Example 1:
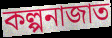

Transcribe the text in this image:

কল্পনাজাত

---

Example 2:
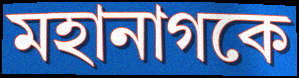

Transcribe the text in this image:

মহানাগকে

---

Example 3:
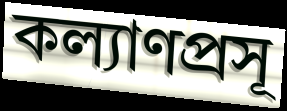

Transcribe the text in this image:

কল্যাণপ্রসূ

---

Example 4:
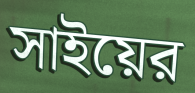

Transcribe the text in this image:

সাইয়ের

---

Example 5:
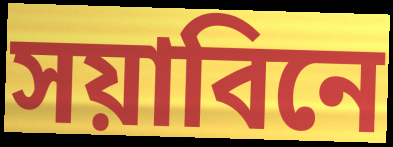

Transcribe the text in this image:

সয়াবিনে